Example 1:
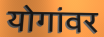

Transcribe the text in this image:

योगांवर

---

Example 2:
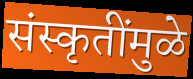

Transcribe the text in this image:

संस्कृतींमुळे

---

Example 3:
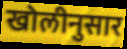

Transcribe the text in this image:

खोलीनुसार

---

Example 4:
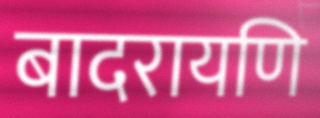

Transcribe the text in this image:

बादरायणि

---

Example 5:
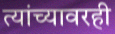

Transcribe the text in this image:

त्यांच्यावरही